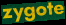
zygote